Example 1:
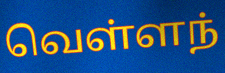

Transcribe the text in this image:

வெள்ளந்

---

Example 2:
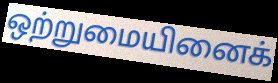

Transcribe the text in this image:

ஒற்றுமையினைக்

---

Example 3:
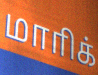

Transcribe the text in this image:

மாரிக்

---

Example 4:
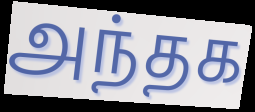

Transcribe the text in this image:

அந்தக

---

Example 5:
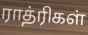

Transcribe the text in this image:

ராத்ரிகள்